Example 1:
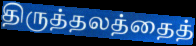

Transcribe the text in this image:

திருத்தலத்தைத்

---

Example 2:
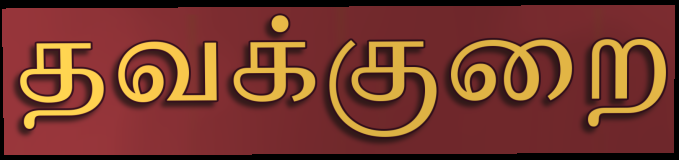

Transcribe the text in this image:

தவக்குறை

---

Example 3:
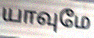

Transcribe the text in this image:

யாவுமே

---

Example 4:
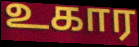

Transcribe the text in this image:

உகார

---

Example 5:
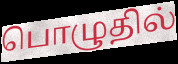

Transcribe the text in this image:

பொழுதில்